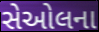
સેઓલના